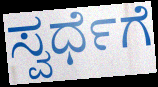
ಸ್ವರ್ಧೆಗೆ